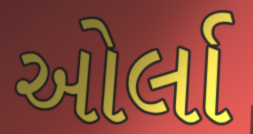
ઓર્લા